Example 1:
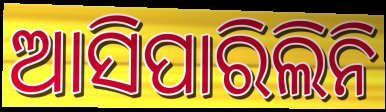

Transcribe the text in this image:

ଆସିପାରିଲିନି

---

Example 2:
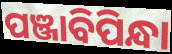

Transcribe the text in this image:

ପଞ୍ଜାବିପିନ୍ଧା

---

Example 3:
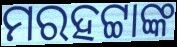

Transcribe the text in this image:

ମରହଟ୍ଟାଙ୍କ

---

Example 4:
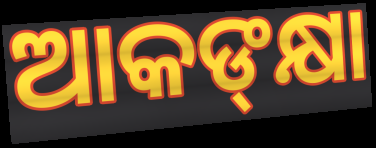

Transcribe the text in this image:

ଆକଙ୍‌କ୍ଷା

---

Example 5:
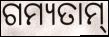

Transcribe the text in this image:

ଗମ୍ୟତାମ୍